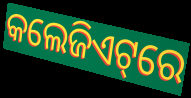
କଲେଜିଏଟ୍‌ରେ